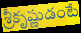
శ్రీకృష్ణుడంటే